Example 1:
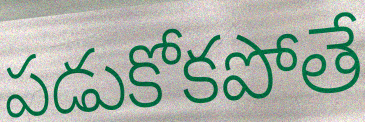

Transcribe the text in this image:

పడుకోకపోతే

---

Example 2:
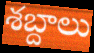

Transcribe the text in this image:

శబ్దాలు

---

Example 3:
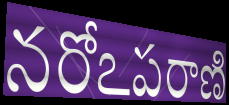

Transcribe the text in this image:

నరోఽపరాణి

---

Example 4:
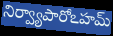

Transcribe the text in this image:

నిర్వ్యాపారోఽహమ్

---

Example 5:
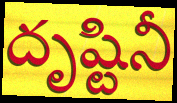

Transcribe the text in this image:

దృష్టినీ